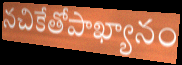
నచికేతోపాఖ్యానం